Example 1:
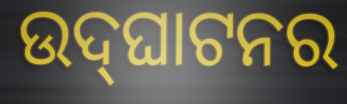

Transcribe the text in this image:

ଉଦ୍‌ଘାଟନର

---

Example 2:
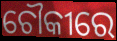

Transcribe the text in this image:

ଚୌକୀରେ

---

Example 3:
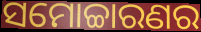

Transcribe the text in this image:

ସମୋଚ୍ଚାରଣର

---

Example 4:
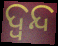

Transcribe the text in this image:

ଦ୍ଵନ୍ଦ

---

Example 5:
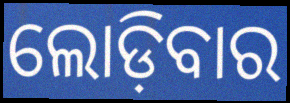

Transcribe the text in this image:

ଲୋଡ଼ିବାର